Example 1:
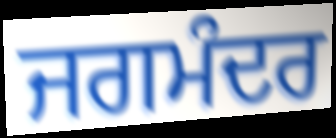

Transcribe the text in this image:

ਜਗਮੰਦਰ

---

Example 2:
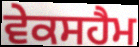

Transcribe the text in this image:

ਵੇਕਸਹੈਮ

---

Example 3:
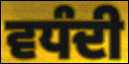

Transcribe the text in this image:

ਵਧੰਦੀ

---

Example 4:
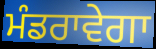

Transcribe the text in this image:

ਮੰਡਰਾਵੇਗਾ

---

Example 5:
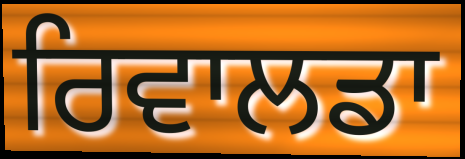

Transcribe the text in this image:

ਰਿਵਾਲਡਾ